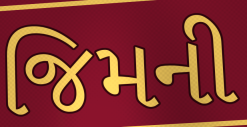
જિમની